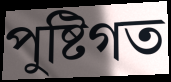
পুষ্টিগত